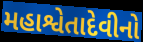
મહાશ્વેતાદેવીનો